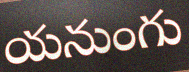
యనుంగు